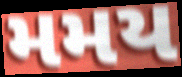
મમય